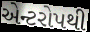
એન્ટરોપથી